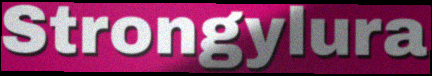
Strongylura